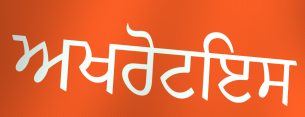
ਅਖਰੋਟਇਸ